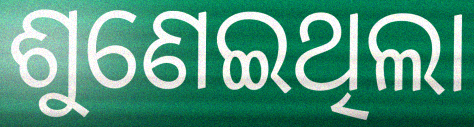
ଶୁଣେଇଥିଲା